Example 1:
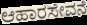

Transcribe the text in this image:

ಆಹಾರಸೇವನೆ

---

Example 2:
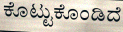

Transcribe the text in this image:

ಕೊಟ್ಟುಕೊಂಡಿದೆ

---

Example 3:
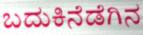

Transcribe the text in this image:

ಬದುಕಿನೆಡೆಗಿನ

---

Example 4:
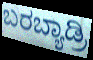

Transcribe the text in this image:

ಬರಬ್ಯಾಡ್ರಿ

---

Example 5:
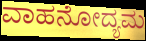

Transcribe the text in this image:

ವಾಹನೋದ್ಯಮ